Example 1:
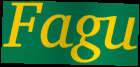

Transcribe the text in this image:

Fagu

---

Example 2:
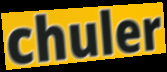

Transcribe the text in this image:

chuler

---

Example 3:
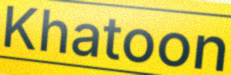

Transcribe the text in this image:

Khatoon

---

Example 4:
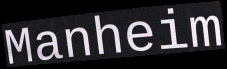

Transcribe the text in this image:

Manheim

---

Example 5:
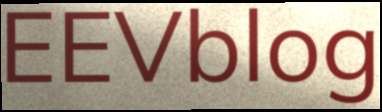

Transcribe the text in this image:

EEVblog